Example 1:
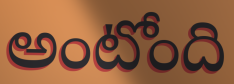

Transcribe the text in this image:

అంటోంది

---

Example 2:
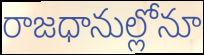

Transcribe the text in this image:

రాజధానుల్లోనూ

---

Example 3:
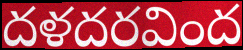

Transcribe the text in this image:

దళదరవింద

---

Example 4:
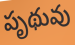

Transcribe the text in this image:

పృథువు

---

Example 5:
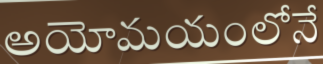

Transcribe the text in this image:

అయోమయంలోనే